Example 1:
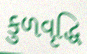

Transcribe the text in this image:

કુળવૃદ્ધિ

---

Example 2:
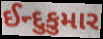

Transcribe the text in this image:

ઈન્દુકુમાર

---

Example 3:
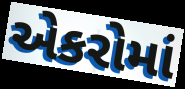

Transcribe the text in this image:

એકરોમાં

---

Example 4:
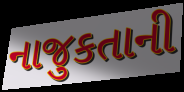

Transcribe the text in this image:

નાજુકતાની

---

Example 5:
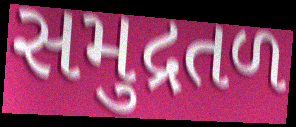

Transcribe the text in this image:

સમુદ્રતળ